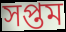
সপ্তম